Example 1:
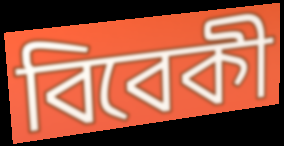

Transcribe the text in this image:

বিবেকী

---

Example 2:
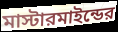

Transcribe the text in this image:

মাস্টারমাইন্ডের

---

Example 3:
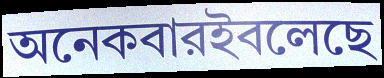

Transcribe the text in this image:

অনেকবারইবলেছে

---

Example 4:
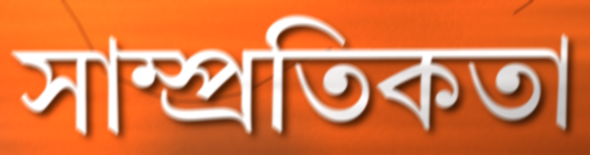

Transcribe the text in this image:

সাম্প্রতিকতা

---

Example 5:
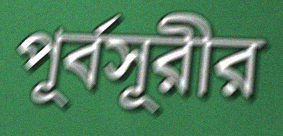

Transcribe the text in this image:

পূর্বসূরীর